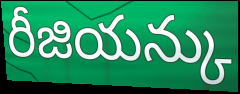
రీజియన్కు